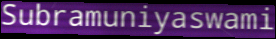
Subramuniyaswami